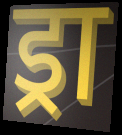
ड्रा